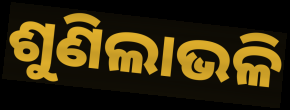
ଶୁଣିଲାଭଳି